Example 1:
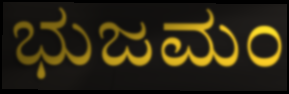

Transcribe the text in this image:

ಭುಜಮಂ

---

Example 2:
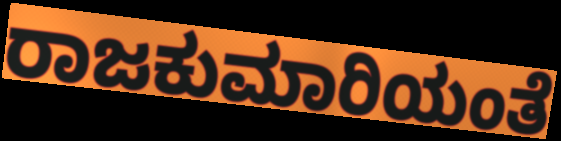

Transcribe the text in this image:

ರಾಜಕುಮಾರಿಯಂತೆ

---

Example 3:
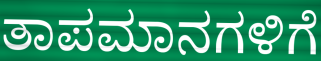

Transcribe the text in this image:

ತಾಪಮಾನಗಳಿಗೆ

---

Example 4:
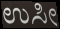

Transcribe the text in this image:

ಉಸೀ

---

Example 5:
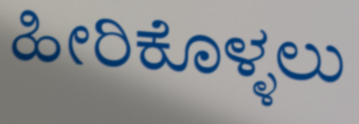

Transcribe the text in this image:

ಹೀರಿಕೊಳ್ಳಲು